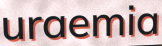
uraemia